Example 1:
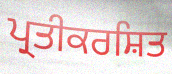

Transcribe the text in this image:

ਪ੍ਰਤੀਕਰਸ਼ਿਤ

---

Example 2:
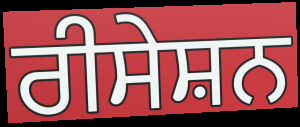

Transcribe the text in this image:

ਰੀਸੇਸ਼ਨ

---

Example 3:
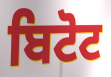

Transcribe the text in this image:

ਬਿਟੋਟ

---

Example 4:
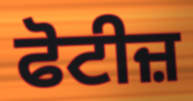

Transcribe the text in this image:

ਫੋਟੀਜ਼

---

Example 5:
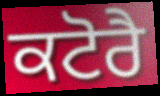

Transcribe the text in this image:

ਕਟੋਰੈ